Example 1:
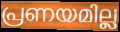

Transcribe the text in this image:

പ്രണയമില്ല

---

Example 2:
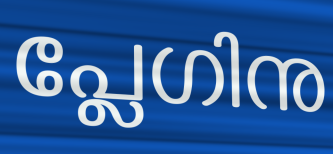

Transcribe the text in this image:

പ്ലേഗിനു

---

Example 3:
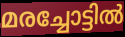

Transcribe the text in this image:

മരച്ചോട്ടിൽ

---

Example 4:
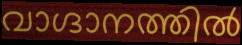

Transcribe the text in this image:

വാഗ്ദാനത്തിൽ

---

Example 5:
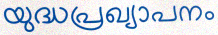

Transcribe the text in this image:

യുദ്ധപ്രഖ്യാപനം